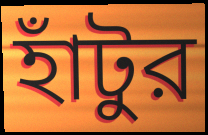
হাঁটুর